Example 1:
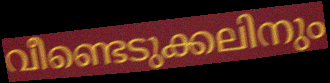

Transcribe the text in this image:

വീണ്ടെടുക്കലിനും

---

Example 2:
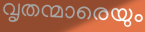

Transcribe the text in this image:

വൃതന്മാരെയും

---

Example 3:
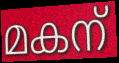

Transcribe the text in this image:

മകന്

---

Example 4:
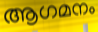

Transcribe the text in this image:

ആഗമനം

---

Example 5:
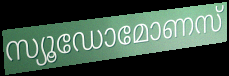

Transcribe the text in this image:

സ്യൂഡോമോണസ്